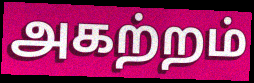
அகற்றம்